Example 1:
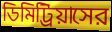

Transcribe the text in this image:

ডিমিট্রিয়াসের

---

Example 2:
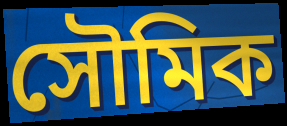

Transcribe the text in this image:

সৌমিক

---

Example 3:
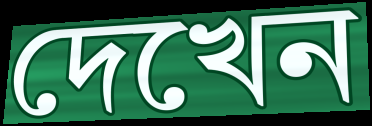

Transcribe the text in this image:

দেখেন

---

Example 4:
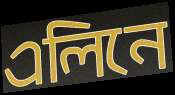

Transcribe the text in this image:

এলিনে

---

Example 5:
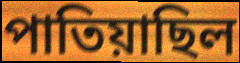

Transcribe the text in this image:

পাতিয়াছিল